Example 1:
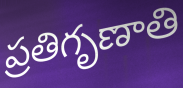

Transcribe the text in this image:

ప్రతిగృణాతి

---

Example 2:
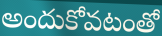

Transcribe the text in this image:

అందుకోవటంతో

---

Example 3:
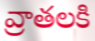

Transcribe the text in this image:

వ్రాతలకి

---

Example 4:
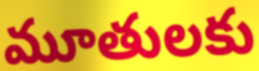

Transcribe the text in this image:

మూతులకు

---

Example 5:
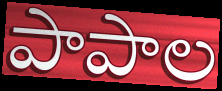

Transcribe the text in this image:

పాపాల